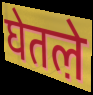
घेतल़े